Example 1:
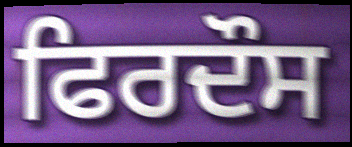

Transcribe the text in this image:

ਫਿਰਦੌਸ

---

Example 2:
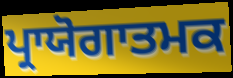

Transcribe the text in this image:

ਪ੍ਰਾਯੋਗਾਤਮਕ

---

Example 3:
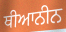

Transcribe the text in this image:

ਥੀਆਨੀਨ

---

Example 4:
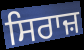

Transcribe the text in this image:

ਸਿਰਾਜ਼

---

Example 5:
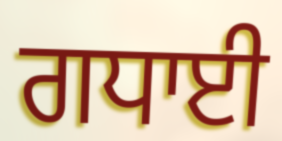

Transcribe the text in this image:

ਗਧਾਈ